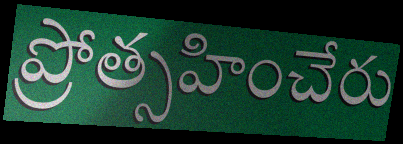
ప్రోత్సహించేరు